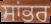
ਸਾਂਭਰ